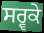
ਸਰ੍ਵਕੇ